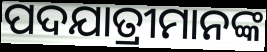
ପଦଯାତ୍ରୀମାନଙ୍କ